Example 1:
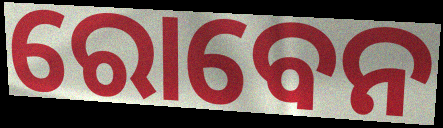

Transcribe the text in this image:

ରୋବେନ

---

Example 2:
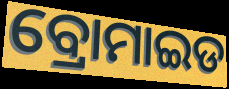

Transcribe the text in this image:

ବ୍ରୋମାଇଡ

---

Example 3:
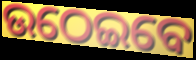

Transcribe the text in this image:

ଉଠେଇବେ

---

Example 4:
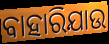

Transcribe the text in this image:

ବାହାରିଯାଉ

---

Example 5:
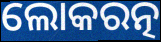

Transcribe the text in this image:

ଲୋକରତ୍ନ